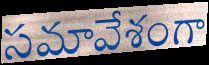
సమావేశంగా